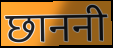
छाननी